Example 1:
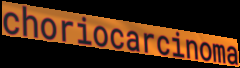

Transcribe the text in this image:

choriocarcinoma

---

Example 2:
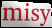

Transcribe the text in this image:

misy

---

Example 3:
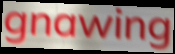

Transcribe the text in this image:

gnawing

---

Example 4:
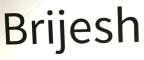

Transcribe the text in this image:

Brijesh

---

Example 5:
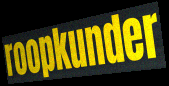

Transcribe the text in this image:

roopkunder